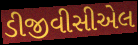
ડીજીવીસીએલ